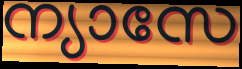
ന്യാസേ